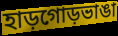
হাড়গোড়ভাঙা